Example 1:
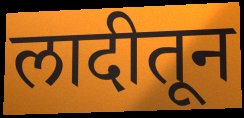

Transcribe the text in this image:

लादीतून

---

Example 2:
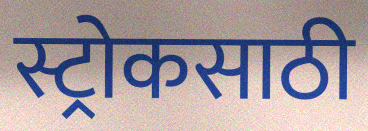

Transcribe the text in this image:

स्ट्रोकसाठी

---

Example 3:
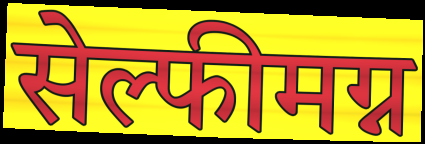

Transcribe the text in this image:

सेल्फीमग्न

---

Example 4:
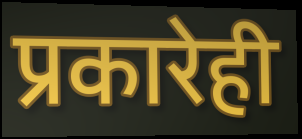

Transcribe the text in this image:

प्रकारेही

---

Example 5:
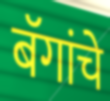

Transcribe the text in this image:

बॅगांचे